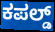
ಕಪಲ್ಡ್